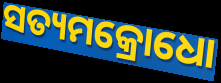
ସତ୍ୟମକ୍ରୋଧୋ